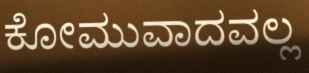
ಕೋಮುವಾದವಲ್ಲ